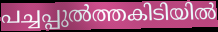
പച്ചപ്പുൽത്തകിടിയിൽ